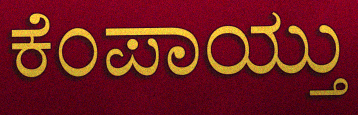
ಕೆಂಪಾಯ್ತು